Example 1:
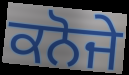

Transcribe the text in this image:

ਕਨੋਜੇ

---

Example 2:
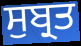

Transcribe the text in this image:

ਸੁਬ੍ਰਤ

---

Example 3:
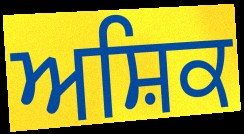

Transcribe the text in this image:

ਅਸ਼ਿਕ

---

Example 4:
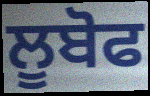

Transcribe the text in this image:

ਲੂਬੋਫ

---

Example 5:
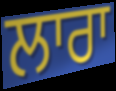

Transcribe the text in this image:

ਲਾਰਾ